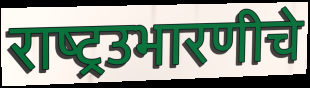
राष्ट्रउभारणीचे